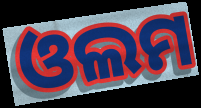
ଓଲମ